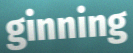
ginning